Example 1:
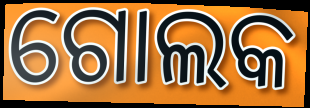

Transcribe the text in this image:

ଗୋଲକ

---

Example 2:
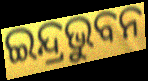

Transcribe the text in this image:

ଇନ୍ଦ୍ରଭୁବନ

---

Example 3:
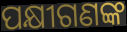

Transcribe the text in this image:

ପକ୍ଷୀଗଣଙ୍କ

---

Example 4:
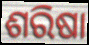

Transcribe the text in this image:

ଶରିଷା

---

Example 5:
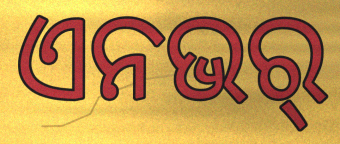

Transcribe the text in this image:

ଏନଭର୍